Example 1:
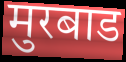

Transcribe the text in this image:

मुरबाड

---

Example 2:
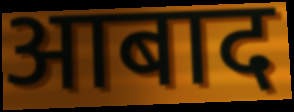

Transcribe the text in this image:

आबाद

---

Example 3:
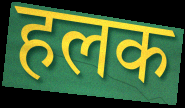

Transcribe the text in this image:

हलक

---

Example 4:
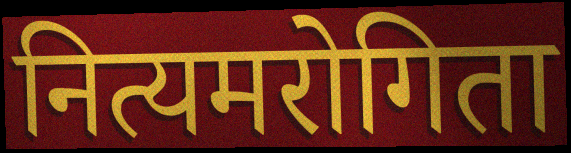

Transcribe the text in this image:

नित्यमरोगिता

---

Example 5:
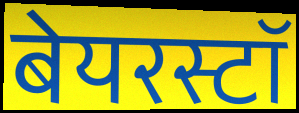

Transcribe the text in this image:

बेयरस्टॉ